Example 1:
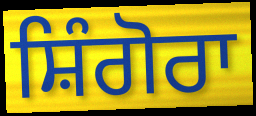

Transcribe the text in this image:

ਸ਼ਿੰਗੋਰਾ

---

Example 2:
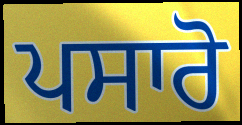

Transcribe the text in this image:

ਪਸਾਰੋ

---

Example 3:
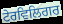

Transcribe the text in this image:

ਟੇਰਵਿਲਿਗਰ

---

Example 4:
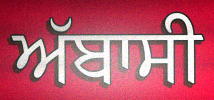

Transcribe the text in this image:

ਅੱਬਾਸੀ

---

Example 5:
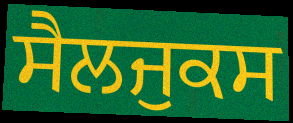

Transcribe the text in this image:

ਸੈਲਜੁਕਸ